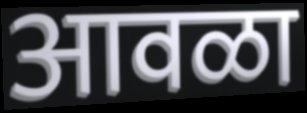
आवळा